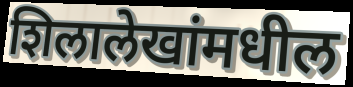
शिलालेखांमधील